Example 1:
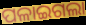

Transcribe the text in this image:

ପଳାଇଗଲା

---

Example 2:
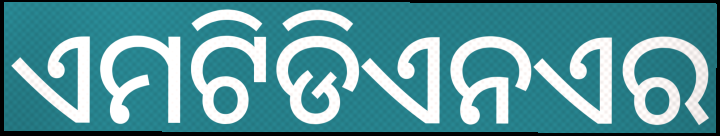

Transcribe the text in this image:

ଏମଟିଡିଏନଏର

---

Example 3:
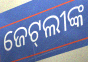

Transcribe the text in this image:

ଜେଟ୍‌ଲୀଙ୍କ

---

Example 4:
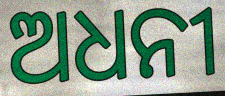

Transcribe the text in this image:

ଅଧନୀ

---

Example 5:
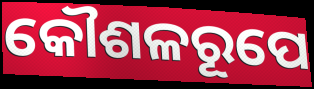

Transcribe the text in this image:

କୌଶଳରୂପେ